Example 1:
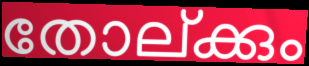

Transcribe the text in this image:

തോല്ക്കും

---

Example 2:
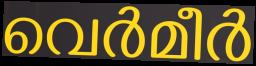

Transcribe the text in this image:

വെർമീർ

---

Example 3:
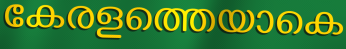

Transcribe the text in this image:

കേരളത്തെയാകെ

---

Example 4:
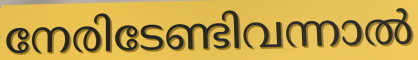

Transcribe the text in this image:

നേരിടേണ്ടിവന്നാൽ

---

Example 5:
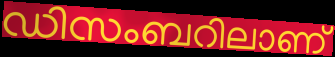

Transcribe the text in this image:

ഡിസംബറിലാണ്